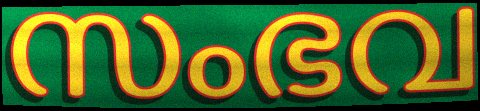
സംഭവ